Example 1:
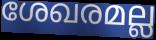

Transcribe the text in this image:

ശേഖരമല്ല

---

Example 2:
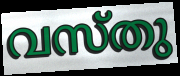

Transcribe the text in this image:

വസ്തു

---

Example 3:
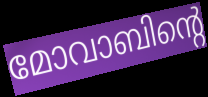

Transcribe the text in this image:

മോവാബിന്റെ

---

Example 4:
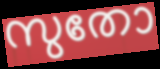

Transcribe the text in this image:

സുതോ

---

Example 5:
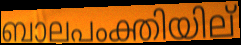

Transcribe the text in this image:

ബാലപംക്തിയില്